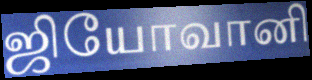
ஜியோவானி